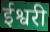
ईश्वरी